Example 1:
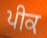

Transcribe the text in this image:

ਪੀਕ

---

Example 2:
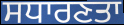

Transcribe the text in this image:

ਸਧਾਰਣਤਾ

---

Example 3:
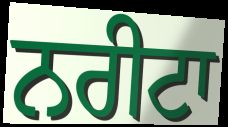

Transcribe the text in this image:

ਨਰੀਟਾ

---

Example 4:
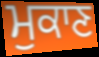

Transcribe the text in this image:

ਮੁਕਾਣ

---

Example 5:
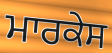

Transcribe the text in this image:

ਮਾਰਕੇਸ